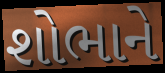
શોભાને